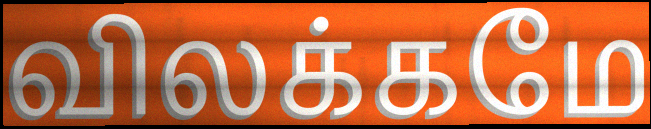
விலக்கமே